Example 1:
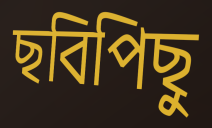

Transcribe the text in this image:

ছবিপিছু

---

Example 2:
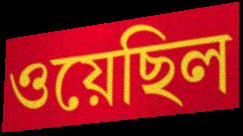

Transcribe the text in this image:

ওয়েছিল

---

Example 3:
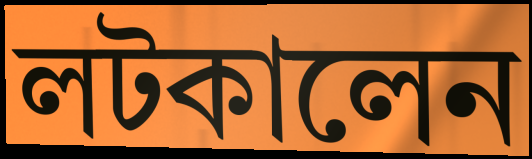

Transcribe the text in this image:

লটকালেন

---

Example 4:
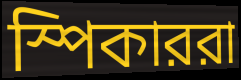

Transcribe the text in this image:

স্পিকাররা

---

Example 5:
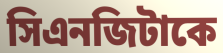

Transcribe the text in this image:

সিএনজিটাকে